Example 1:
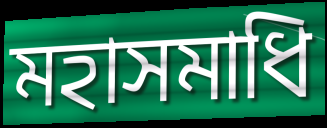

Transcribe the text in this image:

মহাসমাধি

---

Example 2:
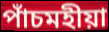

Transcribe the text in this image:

পাঁচমহীয়া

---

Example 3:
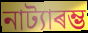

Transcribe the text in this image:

নাট্যাৰম্ভ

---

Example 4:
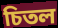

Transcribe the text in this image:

চিতল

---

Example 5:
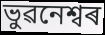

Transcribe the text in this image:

ভুৱনেশ্বৰ